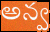
అన్వ